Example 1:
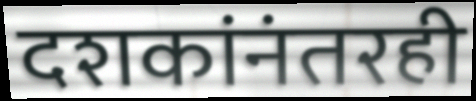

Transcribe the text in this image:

दशकांनंतरही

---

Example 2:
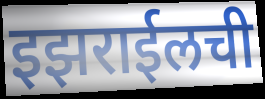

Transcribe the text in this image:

इझराईलची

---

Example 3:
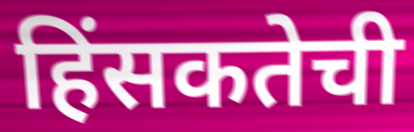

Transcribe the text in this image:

हिंसकतेची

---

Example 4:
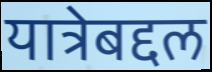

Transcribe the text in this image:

यात्रेबद्दल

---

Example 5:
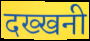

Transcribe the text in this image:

दख्खनी